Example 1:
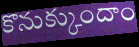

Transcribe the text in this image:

కొనుక్కుందాం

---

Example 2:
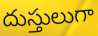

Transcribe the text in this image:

దుస్తులుగా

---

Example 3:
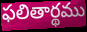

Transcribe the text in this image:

ఫలితార్థము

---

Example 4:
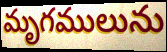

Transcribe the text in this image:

మృగములును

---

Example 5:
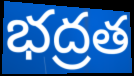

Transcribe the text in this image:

భద్రత